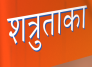
शत्रुताका